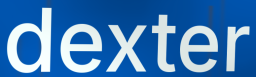
dexter